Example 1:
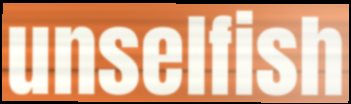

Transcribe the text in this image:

unselfish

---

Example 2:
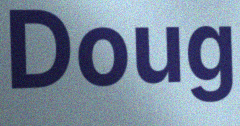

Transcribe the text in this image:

Doug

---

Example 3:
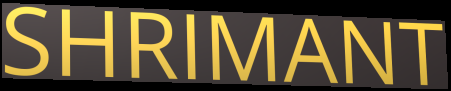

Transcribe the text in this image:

SHRIMANT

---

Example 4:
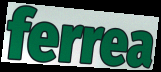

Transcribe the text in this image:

ferrea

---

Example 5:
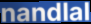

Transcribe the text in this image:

nandlal